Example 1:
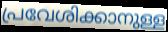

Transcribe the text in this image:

പ്രവേശിക്കാനുള്ള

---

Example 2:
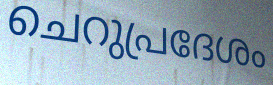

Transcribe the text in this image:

ചെറുപ്രദേശം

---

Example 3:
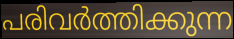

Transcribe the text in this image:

പരിവർത്തിക്കുന്ന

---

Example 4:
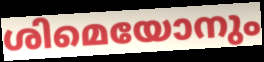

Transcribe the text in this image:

ശിമെയോനും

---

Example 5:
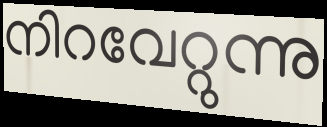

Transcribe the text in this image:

നിറവേറ്റുന്നു